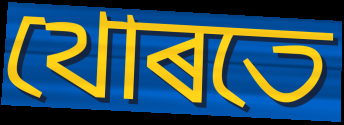
থোৰতে